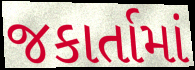
જકાર્તામાં